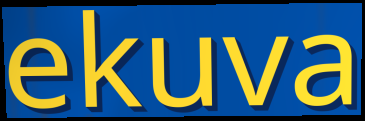
ekuva